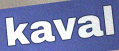
kaval